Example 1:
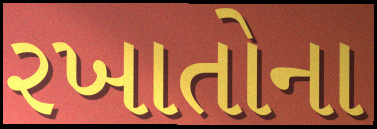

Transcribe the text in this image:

રખાતોના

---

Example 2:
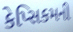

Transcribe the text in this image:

કેપ્સિકમની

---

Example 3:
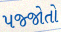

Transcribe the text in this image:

પજ્જોતો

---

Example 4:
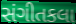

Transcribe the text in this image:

સંગીતકલા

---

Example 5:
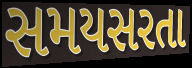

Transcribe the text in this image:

સમયસરતા